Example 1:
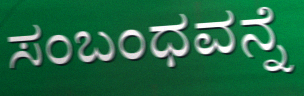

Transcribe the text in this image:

ಸಂಬಂಧವನ್ನೆ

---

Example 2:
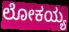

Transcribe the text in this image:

ಲೋಕಯ್ಯ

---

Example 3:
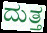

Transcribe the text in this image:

ದುತ್ತ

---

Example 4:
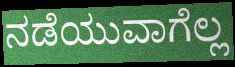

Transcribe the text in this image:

ನಡೆಯುವಾಗೆಲ್ಲ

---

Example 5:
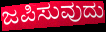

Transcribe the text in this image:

ಜಪಿಸುವುದು